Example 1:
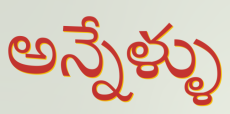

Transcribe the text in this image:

అన్నేళ్ళు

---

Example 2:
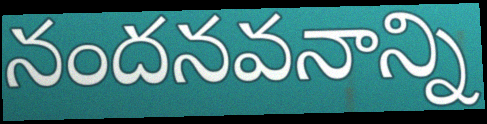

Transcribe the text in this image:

నందనవనాన్ని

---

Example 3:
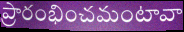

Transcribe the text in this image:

ప్రారంభించమంటావా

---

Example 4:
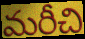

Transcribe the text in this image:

మరీచి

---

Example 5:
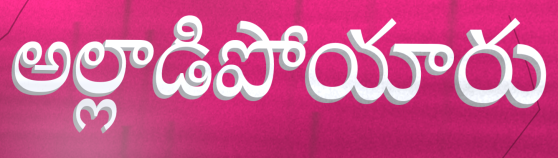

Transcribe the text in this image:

అల్లాడిపోయారు